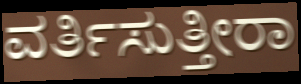
ವರ್ತಿಸುತ್ತೀರಾ